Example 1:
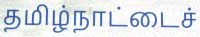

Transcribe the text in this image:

தமிழ்நாட்டைச்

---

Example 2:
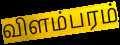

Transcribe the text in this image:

விளம்பரம்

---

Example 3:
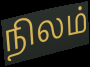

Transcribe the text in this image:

நிலம்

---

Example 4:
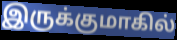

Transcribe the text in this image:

இருக்குமாகில்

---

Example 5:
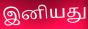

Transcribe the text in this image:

இனியது